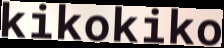
kikokiko